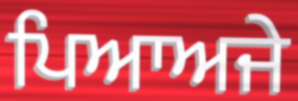
ਪਿਆਅਜੇ